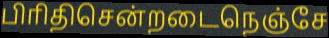
பிரிதிசென்றடைநெஞ்சே